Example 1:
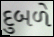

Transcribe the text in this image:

દુબળે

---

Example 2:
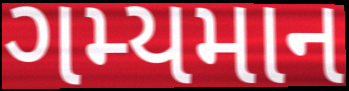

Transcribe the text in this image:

ગમ્યમાન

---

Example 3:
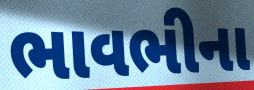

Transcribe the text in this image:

ભાવભીના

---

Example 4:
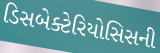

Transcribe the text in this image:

ડિસબેક્ટેરિયોસિસની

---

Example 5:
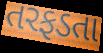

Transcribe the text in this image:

તરફડતા